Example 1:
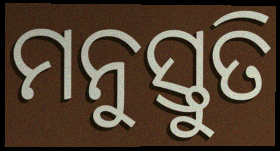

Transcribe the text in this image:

ମନୁସ୍ତୁତି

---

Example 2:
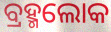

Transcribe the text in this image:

ବ୍ରହ୍ମଲୋକ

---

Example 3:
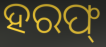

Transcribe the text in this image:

ହରଫ୍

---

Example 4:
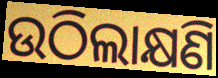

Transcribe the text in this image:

ଉଠିଲାକ୍ଷଣି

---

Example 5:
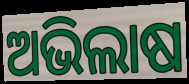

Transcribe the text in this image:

ଅଭିଲାଷ